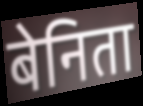
बेनिता